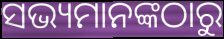
ସଭ୍ୟମାନଙ୍କଠାରୁ